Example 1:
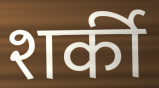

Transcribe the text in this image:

शर्की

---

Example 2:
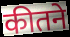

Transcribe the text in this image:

कीतने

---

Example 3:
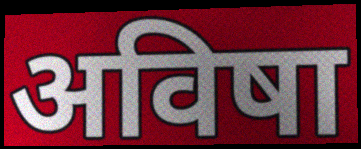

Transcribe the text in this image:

अविषा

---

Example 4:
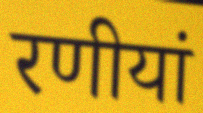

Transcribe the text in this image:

रणीयां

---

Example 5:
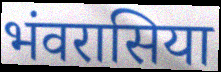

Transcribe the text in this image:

भंवरासिया